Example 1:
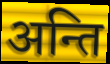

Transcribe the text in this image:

अन्ति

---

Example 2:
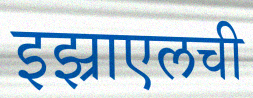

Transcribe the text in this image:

इझ्राएलची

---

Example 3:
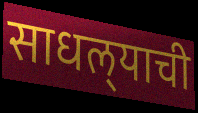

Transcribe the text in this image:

साधल्याची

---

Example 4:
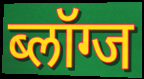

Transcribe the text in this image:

ब्लॉग्ज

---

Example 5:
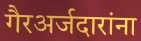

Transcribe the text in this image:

गैरअर्जदारांना